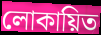
লোকায়িত